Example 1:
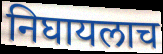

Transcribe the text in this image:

निघायलाच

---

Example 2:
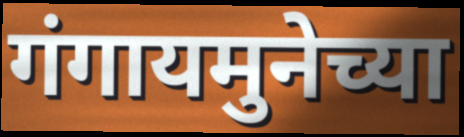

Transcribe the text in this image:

गंगायमुनेच्या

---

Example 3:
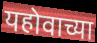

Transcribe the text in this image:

यहोवाच्या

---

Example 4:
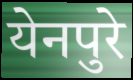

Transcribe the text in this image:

येनपुरे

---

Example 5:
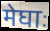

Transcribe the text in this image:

मेघाः